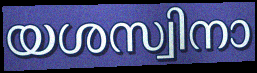
യശസ്വിനാ